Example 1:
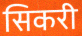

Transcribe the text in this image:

सिकरी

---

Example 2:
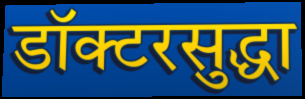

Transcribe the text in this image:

डॉक्टरसुद्धा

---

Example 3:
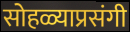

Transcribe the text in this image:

सोहळ्याप्रसंगी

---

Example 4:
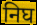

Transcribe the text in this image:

निघ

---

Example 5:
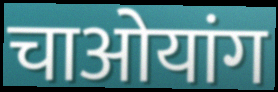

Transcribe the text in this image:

चाओयांग